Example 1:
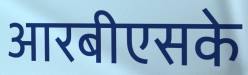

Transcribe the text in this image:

आरबीएसके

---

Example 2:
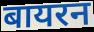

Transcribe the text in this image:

बायरन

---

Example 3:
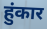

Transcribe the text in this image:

हुंकार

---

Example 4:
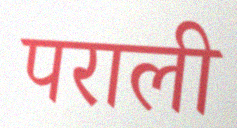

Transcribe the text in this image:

पराली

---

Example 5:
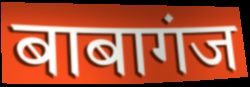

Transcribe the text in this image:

बाबागंज